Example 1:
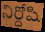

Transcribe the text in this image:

నిర్దోషి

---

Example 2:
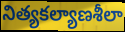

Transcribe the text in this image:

నిత్యకల్యాణశీలా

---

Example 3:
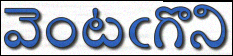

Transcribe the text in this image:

వెంటఁగొని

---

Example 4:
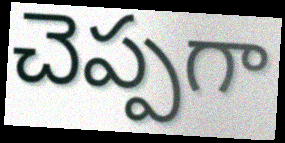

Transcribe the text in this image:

చెప్పగా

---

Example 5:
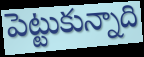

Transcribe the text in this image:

పెట్టుకున్నాది